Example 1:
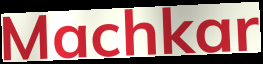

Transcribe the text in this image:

Machkar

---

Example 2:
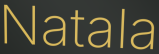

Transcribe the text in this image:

Natala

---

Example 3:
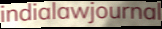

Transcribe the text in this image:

indialawjournal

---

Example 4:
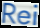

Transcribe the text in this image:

Rei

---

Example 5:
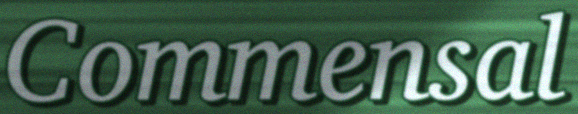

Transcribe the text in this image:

Commensal